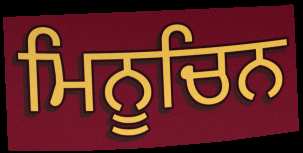
ਮਿਨੂਚਿਨ